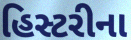
હિસ્ટરીના